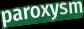
paroxysm